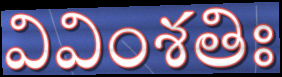
వివింశతిః